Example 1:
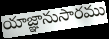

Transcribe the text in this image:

యాజ్ఞానుసారము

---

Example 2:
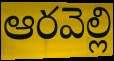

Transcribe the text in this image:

ఆరవెల్లి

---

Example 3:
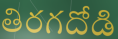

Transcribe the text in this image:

తిరగదోడి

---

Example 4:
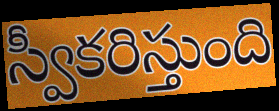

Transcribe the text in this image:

స్వీకరిస్తుంది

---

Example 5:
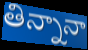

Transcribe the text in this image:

తిన్నానా